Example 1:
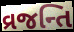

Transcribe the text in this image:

વ્રજન્તિ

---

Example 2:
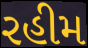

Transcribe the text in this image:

રહીમ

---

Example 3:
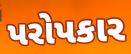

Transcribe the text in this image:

પરોપકાર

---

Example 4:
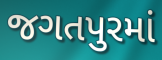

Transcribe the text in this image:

જગતપુરમાં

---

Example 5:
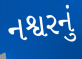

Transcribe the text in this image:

નશ્વરનું